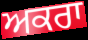
ਅਕਰਾ